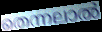
തെന്നലാൽ